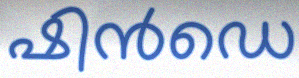
ഷിൻഡെ